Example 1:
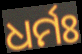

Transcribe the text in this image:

ଧର୍ମଃ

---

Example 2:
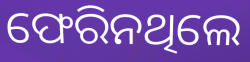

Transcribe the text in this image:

ଫେରିନଥିଲେ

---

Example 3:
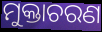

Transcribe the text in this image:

ମୁକ୍ତାଚରଣ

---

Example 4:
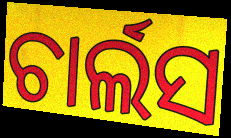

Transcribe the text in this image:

ଚାର୍ଲସ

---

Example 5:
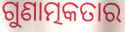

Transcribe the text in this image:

ଗୁଣାତ୍ମକତାର